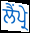
ਲੈਂਪ੍ਰੇ